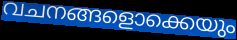
വചനങ്ങളൊക്കെയും